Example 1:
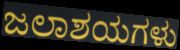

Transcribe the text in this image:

ಜಲಾಶಯಗಳು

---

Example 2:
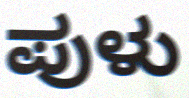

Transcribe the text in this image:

ಪುಳು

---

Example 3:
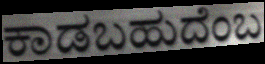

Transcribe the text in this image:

ಕಾಡಬಹುದೆಂಬ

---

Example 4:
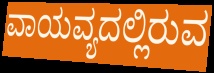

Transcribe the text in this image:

ವಾಯವ್ಯದಲ್ಲಿರುವ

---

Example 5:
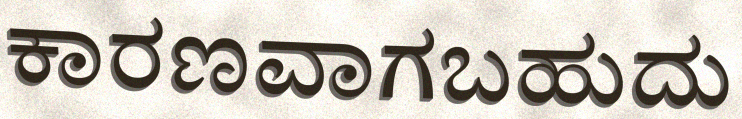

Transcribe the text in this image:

ಕಾರಣವಾಗಬಹುದು